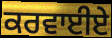
ਕਰਵਾਈਏ